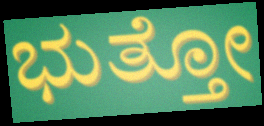
ಭುತ್ತೋ